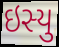
ઇસ્યુ